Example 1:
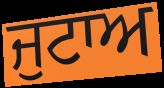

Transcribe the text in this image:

ਜੁਟਾਅ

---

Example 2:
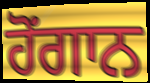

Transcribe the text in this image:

ਹੋਂਗਾਨ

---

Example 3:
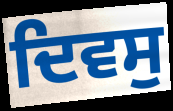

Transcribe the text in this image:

ਦਿਵਸੁ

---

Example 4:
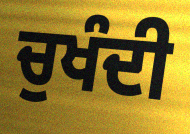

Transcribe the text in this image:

ਚੁਖੰਦੀ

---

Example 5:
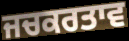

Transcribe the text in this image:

ਜਚਕਰਤਾਵ